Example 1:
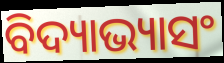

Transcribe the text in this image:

ବିଦ୍ୟାଭ୍ୟାସଂ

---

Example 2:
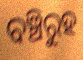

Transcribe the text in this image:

ବଞ୍ଚିରୁହ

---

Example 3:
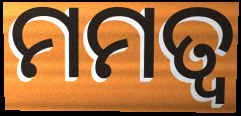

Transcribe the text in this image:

ମମତ୍ୱ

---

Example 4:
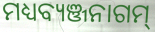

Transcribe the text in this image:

ମଧ୍ୟବ୍ୟଞ୍ଜନାଗମ୍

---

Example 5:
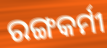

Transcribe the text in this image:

ରଙ୍ଗକର୍ମୀ